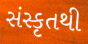
સંસ્કૃતથી